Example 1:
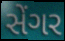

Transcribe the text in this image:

સેંગર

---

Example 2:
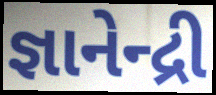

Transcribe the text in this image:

જ્ઞાનેન્દ્રી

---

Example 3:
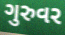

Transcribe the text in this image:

ગુરુવર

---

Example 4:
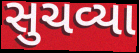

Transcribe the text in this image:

સુચવ્યા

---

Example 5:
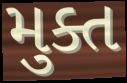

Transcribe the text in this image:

મુક્ત